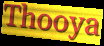
Thooya